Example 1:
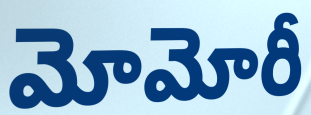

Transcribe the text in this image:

మోమోరీ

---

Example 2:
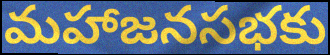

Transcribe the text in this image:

మహాజనసభకు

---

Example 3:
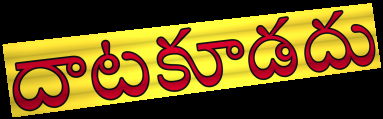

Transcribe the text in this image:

దాటకూడదు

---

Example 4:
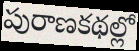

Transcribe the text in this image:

పురాణకథల్లో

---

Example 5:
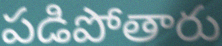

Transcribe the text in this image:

పడిపోతారు